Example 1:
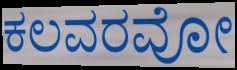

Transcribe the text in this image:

ಕಲವರವೋ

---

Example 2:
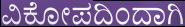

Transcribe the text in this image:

ವಿಕೋಪದಿಂದಾಗಿ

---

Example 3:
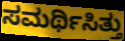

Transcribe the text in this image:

ಸಮರ್ಥಿಸಿತ್ತು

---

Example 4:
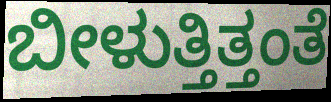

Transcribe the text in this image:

ಬೀಳುತ್ತಿತ್ತಂತೆ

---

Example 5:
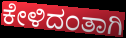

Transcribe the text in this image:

ಕೇಳಿದಂತಾಗಿ